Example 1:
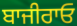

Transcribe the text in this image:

ਬਾਜੀਰਾਓ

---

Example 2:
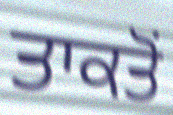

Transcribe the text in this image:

ਤਾਕਤੋਂ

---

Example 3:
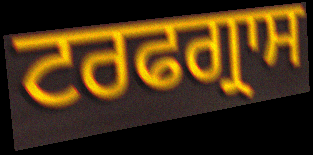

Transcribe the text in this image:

ਟਰਫਗ੍ਰਾਸ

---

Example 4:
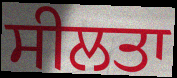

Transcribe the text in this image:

ਸੀਲਤਾ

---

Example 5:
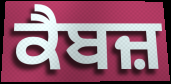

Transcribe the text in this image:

ਕੈਬਜ਼